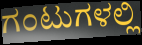
ಗಂಟುಗಳಲ್ಲಿ